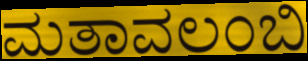
ಮತಾವಲಂಬಿ